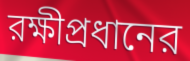
রক্ষীপ্রধানের